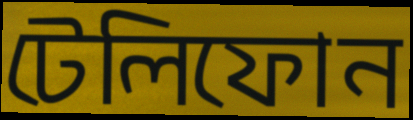
টেলিফোন